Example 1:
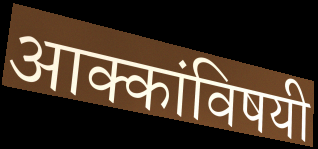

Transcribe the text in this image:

आक्कांविषयी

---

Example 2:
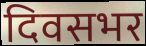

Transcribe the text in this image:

दिवसभर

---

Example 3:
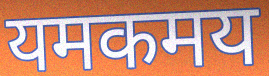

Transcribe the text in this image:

यमकमय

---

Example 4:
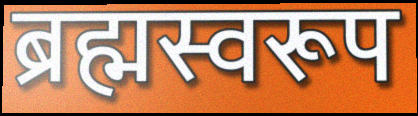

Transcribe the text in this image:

ब्रह्मस्वरूप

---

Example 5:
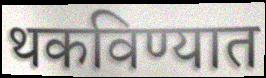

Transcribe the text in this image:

थकविण्यात